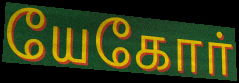
யேகோர்